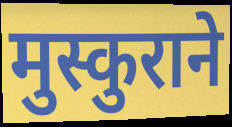
मुस्कुराने